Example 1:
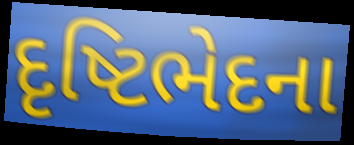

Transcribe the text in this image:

દૃષ્ટિભેદના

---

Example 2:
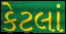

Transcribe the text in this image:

કેટલાં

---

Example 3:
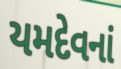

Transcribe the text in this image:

યમદેવનાં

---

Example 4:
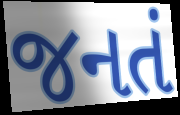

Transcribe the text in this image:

જનતં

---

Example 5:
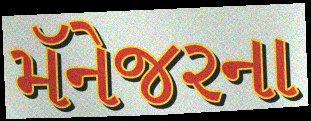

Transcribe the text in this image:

મૅનેજરના